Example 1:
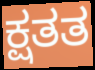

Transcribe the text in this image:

ಕ್ಷತತ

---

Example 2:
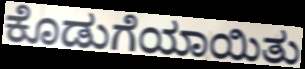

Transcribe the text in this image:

ಕೊಡುಗೆಯಾಯಿತು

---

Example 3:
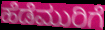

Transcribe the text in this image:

ಹೆಡೆಮುರಿಗೆ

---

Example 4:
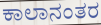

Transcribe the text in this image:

ಕಾಲಾನಂತರ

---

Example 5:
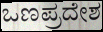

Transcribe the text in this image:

ಒಣಪ್ರದೇಶ